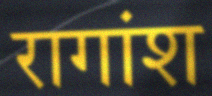
रागांश